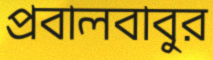
প্রবালবাবুর